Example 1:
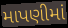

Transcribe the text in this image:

માપણીમાં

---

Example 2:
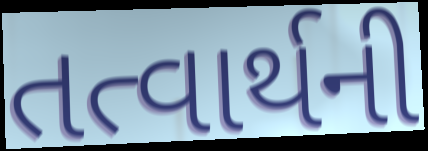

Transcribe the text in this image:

તત્વાર્થની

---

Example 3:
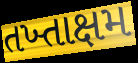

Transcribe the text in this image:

તખ્તાક્ષમ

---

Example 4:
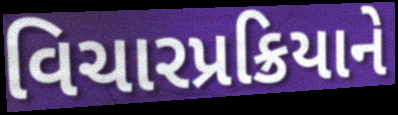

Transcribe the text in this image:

વિચારપ્રક્રિયાને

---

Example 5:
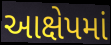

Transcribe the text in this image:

આક્ષેપમાં